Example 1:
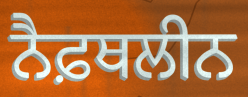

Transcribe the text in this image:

ਨੈਫ਼ਥਲੀਨ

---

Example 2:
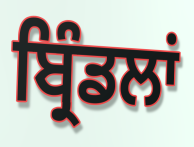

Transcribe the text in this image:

ਬ੍ਰਿੰਡਲਾਂ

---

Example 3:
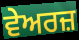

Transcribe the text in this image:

ਵੇਅਰਜ਼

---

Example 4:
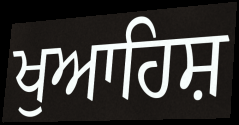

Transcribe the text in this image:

ਖੁਆਹਿਸ਼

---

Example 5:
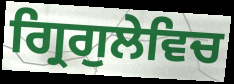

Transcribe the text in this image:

ਗ੍ਰਿਗੁਲੇਵਿਚ